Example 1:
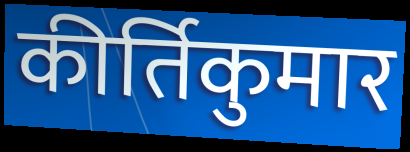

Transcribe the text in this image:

कीर्तिकुमार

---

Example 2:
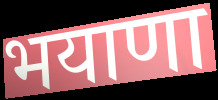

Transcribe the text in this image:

भयाणा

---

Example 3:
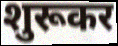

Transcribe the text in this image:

शुरूकर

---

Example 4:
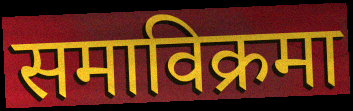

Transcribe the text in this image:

समाविक्रमा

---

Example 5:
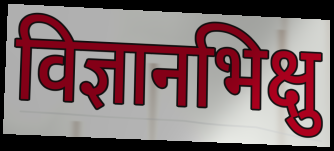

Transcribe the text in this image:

विज्ञानभिक्षु